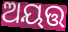
ଅୟତ୍ତ